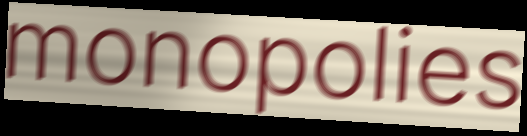
monopolies